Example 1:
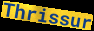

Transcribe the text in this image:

Thrissur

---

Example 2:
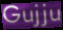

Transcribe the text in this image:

Gujju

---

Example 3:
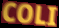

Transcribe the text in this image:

COLI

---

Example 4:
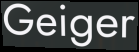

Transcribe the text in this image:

Geiger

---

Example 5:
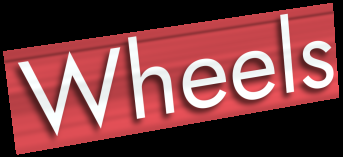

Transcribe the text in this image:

Wheels